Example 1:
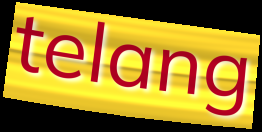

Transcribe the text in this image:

telang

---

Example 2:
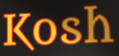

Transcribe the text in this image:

Kosh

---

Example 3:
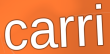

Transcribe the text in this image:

carri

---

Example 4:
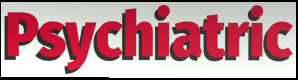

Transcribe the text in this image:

Psychiatric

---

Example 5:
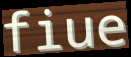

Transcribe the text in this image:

fiue